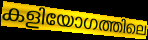
കളിയോഗത്തിലെ